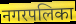
नगरपलिका